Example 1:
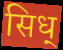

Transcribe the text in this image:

सिध्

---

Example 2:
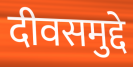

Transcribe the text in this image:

दीवसमुद्दे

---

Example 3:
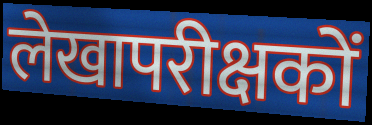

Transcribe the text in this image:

लेखापरीक्षकों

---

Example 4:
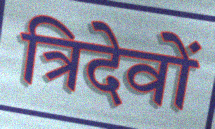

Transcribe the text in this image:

त्रिदेवों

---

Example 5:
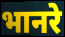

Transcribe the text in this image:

भानरे